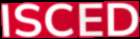
ISCED